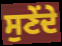
ਸੁਣੇਂਦੇ